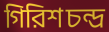
গিরিশচন্দ্র